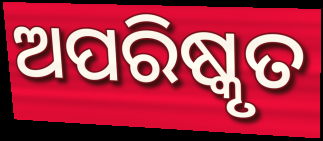
ଅପରିଷ୍କୃତ